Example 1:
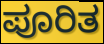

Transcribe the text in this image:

ಪೂರಿತ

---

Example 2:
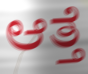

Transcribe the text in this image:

ಆತ್ತೆ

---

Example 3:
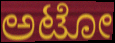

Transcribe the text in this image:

ಅಟೋ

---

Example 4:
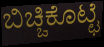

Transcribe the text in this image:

ಬಿಚ್ಚಿಕೊಟ್ಟೆ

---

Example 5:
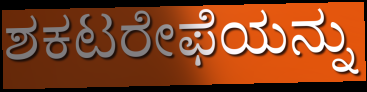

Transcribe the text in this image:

ಶಕಟರೇಫೆಯನ್ನು